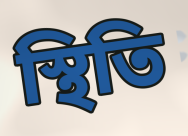
স্থিতি